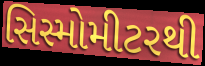
સિસ્મોમીટરથી